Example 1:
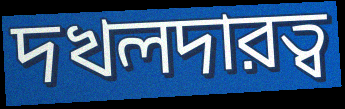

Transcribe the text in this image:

দখলদারত্ব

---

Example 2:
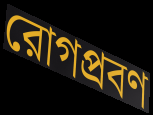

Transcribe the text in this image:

রোগপ্রবণ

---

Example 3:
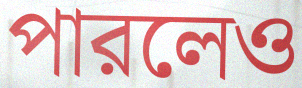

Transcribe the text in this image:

পারলেও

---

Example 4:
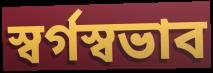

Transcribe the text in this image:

স্বর্গস্বভাব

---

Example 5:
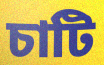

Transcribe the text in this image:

চাটি